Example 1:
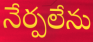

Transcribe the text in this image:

నేర్పలేను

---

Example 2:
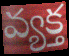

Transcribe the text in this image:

వ్యక్త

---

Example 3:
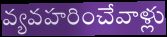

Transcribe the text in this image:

వ్యవహరించేవాళ్లు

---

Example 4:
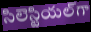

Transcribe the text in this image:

సిలెస్టియల్‌గా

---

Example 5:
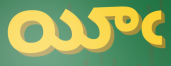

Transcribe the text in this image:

యీఁ